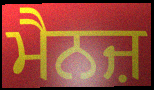
ਮੈਨਜ਼